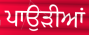
ਪਾਉੜੀਆਂ